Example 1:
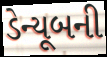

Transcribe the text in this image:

ડેન્યૂબની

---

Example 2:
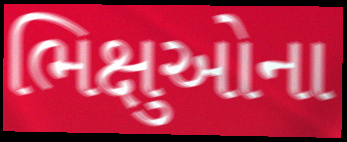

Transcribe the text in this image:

ભિક્ષુઓના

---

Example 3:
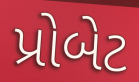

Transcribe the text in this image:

પ્રોબેટ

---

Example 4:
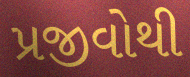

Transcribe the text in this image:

પ્રજીવોથી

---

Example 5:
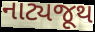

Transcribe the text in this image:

નાટ્યજૂથ